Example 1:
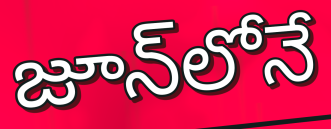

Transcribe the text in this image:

జూన్‌లోనే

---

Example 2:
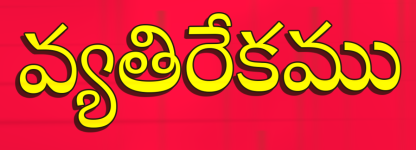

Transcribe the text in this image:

వ్యతిరేకము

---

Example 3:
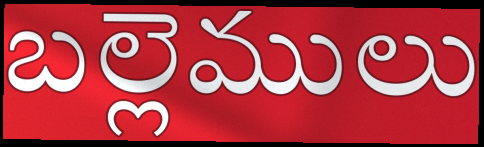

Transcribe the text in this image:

బల్లెములు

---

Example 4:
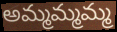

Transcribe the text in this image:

అమ్మమ్మమ్మ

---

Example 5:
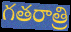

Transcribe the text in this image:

గతరాత్రి